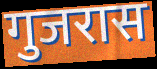
गुजरास